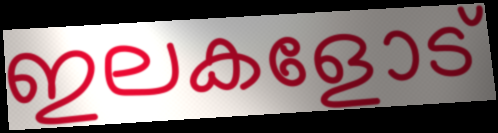
ഇലകളോട്